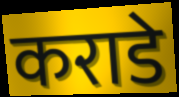
कराडे